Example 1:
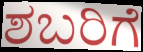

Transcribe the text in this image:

ಶಬರಿಗೆ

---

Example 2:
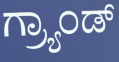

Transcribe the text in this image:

ಗ್ರ್ಯಾಂಡ್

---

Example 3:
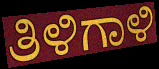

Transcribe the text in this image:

ತಿಳಿಗಾಳಿ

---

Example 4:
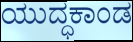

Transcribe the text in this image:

ಯುದ್ಧಕಾಂಡ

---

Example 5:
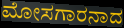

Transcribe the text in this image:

ಮೋಸಗಾರನಾದ